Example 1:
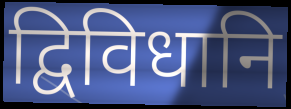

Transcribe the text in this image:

द्विविधानि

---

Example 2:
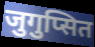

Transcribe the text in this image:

जुगुप्सित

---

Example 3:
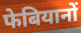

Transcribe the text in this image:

फेबियानों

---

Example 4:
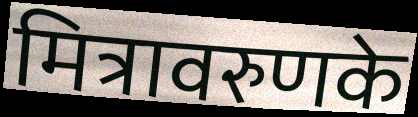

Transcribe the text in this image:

मित्रावरुणके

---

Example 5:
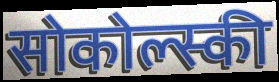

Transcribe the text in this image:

सोकोल्स्की